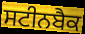
ਸਟੀਨਬੈਕ